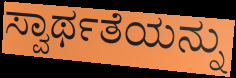
ಸ್ವಾರ್ಥತೆಯನ್ನು